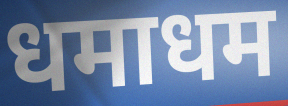
धमाधम